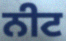
ਨੀਟ